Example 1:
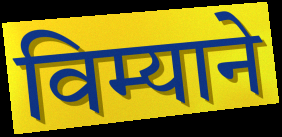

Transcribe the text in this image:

विम्याने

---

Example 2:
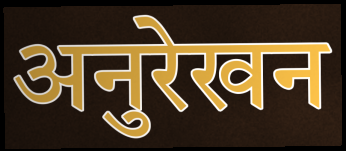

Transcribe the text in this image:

अनुरेखन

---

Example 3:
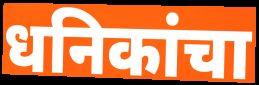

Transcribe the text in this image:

धनिकांचा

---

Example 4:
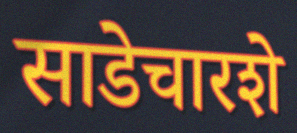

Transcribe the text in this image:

साडेचारशे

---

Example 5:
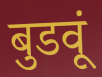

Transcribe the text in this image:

बुडवूं